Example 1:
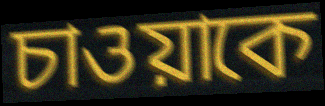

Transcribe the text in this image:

চাওয়াকে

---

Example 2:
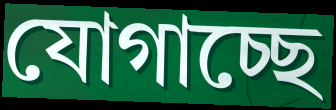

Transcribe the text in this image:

যোগাচ্ছে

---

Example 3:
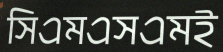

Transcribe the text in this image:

সিএমএসএমই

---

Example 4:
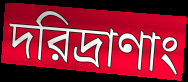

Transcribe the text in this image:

দরিদ্রাণাং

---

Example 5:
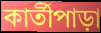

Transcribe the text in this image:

কার্তীপাড়া